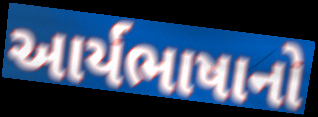
આર્યભાષાનો